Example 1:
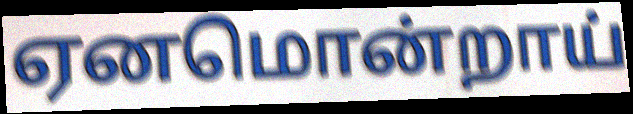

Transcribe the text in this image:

ஏனமொன்றாய்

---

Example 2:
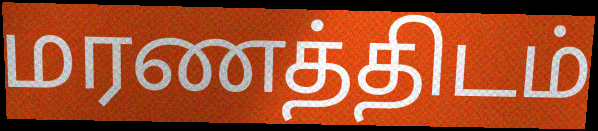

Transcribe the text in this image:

மரணத்திடம்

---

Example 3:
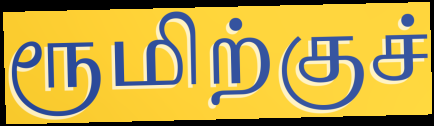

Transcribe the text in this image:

ரூமிற்குச்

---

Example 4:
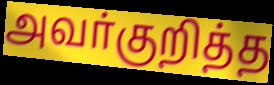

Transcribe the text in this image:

அவர்குறித்த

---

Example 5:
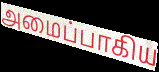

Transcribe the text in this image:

அமைப்பாகிய